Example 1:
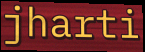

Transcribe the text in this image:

jharti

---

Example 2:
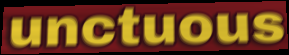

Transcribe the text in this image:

unctuous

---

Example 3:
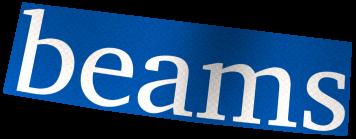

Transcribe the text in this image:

beams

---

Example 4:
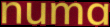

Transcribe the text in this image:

numa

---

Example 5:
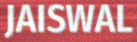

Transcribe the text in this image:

JAISWAL